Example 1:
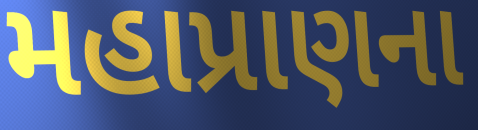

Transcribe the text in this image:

મહાપ્રાણના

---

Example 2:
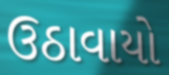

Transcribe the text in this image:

ઉઠાવાયો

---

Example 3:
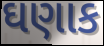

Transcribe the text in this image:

ઘણાક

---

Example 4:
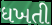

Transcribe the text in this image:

ધખતી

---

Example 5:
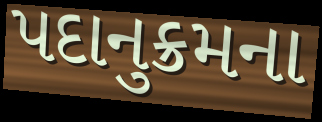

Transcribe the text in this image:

પદાનુક્રમના